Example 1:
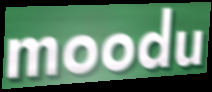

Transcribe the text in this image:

moodu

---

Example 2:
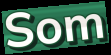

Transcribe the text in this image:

Som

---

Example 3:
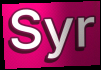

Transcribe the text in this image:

Syr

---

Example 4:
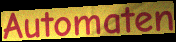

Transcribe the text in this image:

Automaten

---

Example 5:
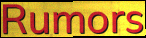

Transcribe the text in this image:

Rumors